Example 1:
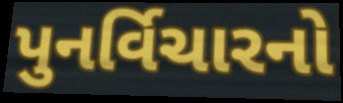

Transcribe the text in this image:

પુનર્વિચારનો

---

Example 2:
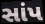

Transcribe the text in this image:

સાંપ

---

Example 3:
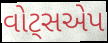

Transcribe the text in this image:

વોટ્સએપ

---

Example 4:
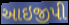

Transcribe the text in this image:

આઇજીપી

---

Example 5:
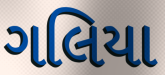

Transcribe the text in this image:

ગલિયા